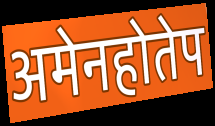
अमेनहोतेप